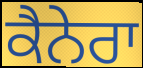
ਕੈਨੇਰਾ